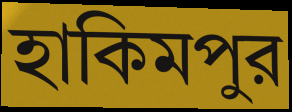
হাকিমপুর